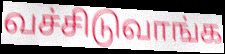
வச்சிடுவாங்க